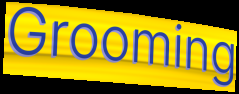
Grooming